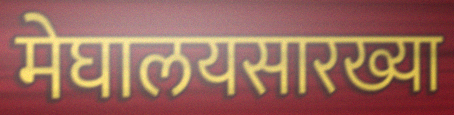
मेघालयसारख्या